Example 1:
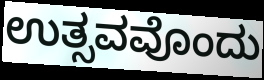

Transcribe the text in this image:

ಉತ್ಸವವೊಂದು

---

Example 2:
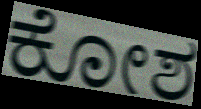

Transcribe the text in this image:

ಕೋಶ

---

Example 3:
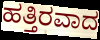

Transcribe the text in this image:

ಹತ್ತಿರವಾದ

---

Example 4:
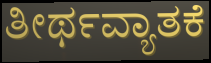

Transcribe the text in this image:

ತೀರ್ಥವ್ಯಾತಕೆ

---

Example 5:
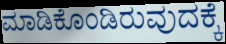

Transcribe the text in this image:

ಮಾಡಿಕೊಂಡಿರುವುದಕ್ಕೆ